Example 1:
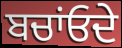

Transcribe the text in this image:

ਬਚਾਂਓਦੇ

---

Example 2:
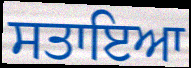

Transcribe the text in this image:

ਸਤਾਇਆ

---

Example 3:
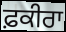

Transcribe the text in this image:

ਫ਼ਕੀਰਾ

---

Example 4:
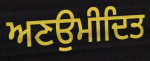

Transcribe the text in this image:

ਅਣਉਮੀਦਿਤ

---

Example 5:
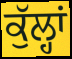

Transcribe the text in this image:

ਕੁੱਲ੍ਹਾਂ